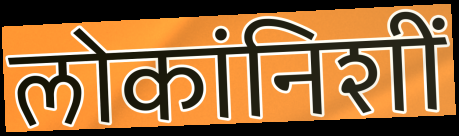
लोकांनिशीं